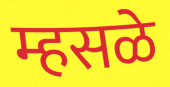
म्हसळे